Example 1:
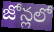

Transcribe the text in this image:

జోన్లలో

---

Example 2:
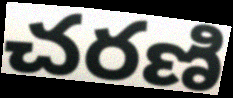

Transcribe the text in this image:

చరణి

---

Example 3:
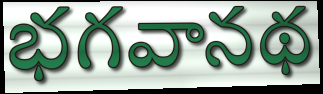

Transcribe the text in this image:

భగవానథ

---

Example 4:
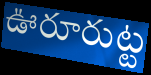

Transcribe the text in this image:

ఊరూరుట్ట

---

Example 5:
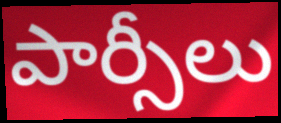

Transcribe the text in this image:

పార్సీలు